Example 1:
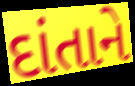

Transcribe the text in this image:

દાંતાને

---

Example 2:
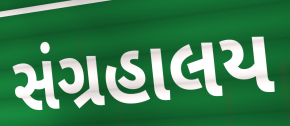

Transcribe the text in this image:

સંગ્રહાલય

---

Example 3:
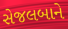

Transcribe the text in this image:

સેજલબાને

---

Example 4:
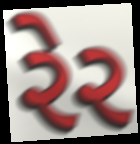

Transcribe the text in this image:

રેર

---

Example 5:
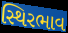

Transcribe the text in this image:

સ્થિરભાવ